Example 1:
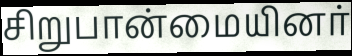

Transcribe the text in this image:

சிறுபான்மையினர்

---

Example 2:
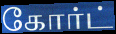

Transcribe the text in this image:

கோர்ட்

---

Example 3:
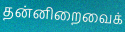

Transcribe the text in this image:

தன்னிறைவைக்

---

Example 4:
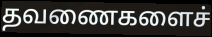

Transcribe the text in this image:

தவணைகளைச்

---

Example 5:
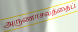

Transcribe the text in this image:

அருணாசலத்தைப்